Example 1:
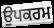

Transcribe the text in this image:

ਉਪਕਰਮ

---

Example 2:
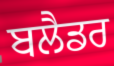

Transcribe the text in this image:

ਬਲੈਡਰ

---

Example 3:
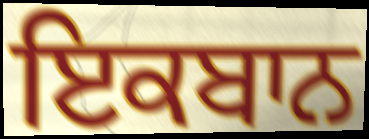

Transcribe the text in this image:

ਇਕਬਾਨ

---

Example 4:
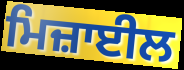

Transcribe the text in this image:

ਮਿਜ਼ਾਈਲ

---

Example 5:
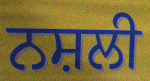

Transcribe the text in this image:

ਨਸ਼ਲੀ